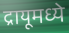
द्रायूमध्ये